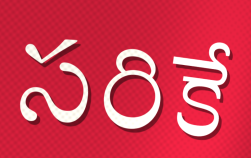
సరికే